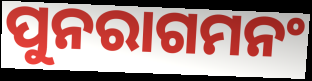
ପୁନରାଗମନଂ